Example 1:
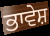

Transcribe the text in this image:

ਭਾਵੇਸ਼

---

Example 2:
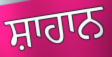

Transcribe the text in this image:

ਸ਼ਾਹਾਨ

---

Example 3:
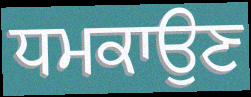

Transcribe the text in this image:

ਧਮਕਾਉਣ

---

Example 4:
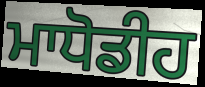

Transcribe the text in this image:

ਮਾਧੋਡੀਹ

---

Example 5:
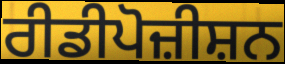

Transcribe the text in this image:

ਰੀਡੀਪੋਜ਼ੀਸ਼ਨ